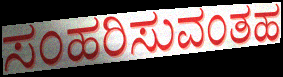
ಸಂಹರಿಸುವಂತಹ